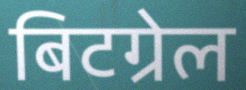
बिटग्रेल